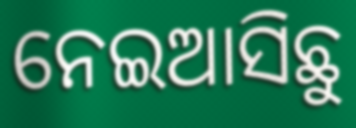
ନେଇଆସିଛୁ